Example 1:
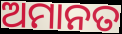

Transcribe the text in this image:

ଅମାନତ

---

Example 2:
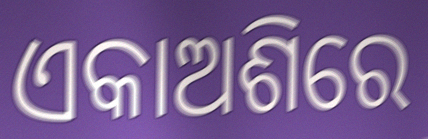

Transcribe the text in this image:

ଏକାଅଶିରେ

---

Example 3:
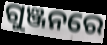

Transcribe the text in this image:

ଗୁଞ୍ଜନରେ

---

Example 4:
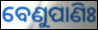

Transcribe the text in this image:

ବେଣୁପାଣିଃ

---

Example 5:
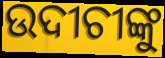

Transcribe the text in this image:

ଉଦୀଚୀଙ୍କୁ